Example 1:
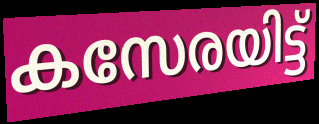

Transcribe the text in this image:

കസേരയിട്ട്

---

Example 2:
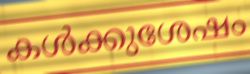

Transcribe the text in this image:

കൾക്കുശേഷം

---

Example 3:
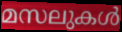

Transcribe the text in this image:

മസലുകൾ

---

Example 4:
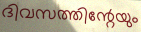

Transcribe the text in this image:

ദിവസത്തിന്റേയും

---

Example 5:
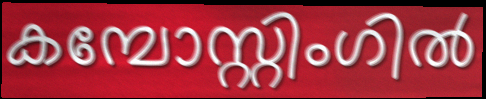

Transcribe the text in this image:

കമ്പോസ്റ്റിംഗിൽ